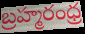
బ్రహ్మరంధ్ర